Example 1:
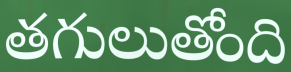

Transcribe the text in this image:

తగులుతోంది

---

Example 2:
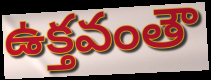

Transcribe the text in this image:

ఉక్తవంతౌ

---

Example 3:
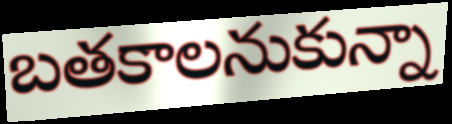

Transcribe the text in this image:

బతకాలనుకున్నా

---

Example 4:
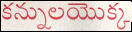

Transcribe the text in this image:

కన్నులయొక్క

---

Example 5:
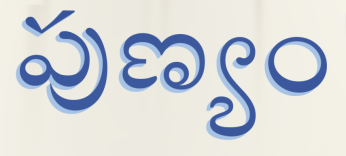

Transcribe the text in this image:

పుణ్యం